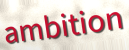
ambition